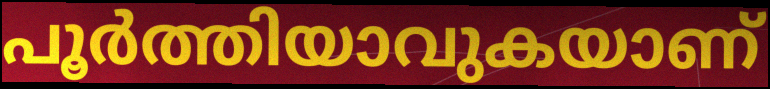
പൂർത്തിയാവുകയാണ്